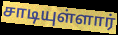
சாடியுள்ளார்